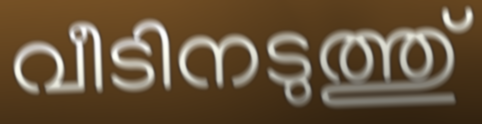
വീടിനടുത്തു്